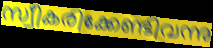
സ്വീകരിക്കേണ്ടിവന്നു